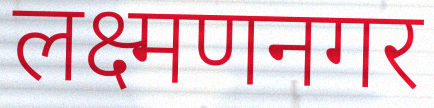
लक्ष्मणनगर